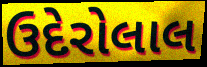
ઉદેરોલાલ